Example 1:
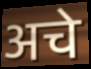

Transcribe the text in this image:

अचे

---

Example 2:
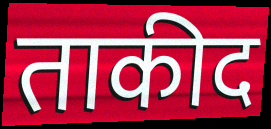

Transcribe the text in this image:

ताकीद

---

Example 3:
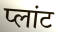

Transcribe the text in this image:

प्‍लांट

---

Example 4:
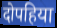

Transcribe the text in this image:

दोपहिया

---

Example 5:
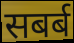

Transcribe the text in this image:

सबर्ब